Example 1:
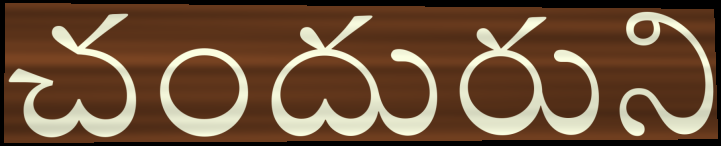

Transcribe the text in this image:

చందురుని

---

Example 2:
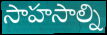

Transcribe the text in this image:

సాహసాల్ని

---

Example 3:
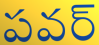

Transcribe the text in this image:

పవర్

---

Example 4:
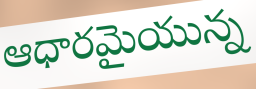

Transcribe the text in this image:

ఆధారమైయున్న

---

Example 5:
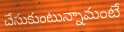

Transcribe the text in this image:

చేసుకుంటున్నామంటే